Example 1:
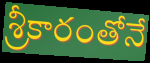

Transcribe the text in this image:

శ్రీకారంతోనే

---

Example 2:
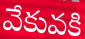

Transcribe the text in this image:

వేకువకి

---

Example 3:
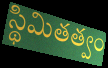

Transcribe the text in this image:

స్థిమితత్వం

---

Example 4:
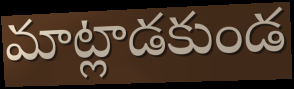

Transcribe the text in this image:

మాట్లాడకుండ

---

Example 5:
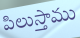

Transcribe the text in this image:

పిలుస్తాము